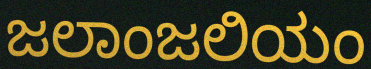
ಜಲಾಂಜಲಿಯಂ